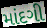
માંદગી